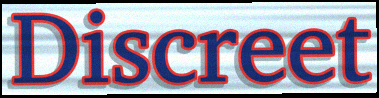
Discreet